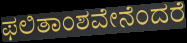
ಫಲಿತಾಂಶವೇನೆಂದರೆ